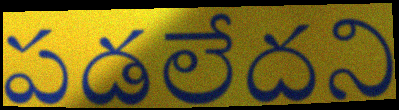
పడలేదని